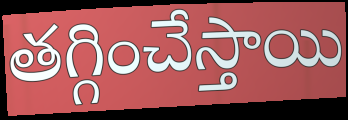
తగ్గించేస్తాయి